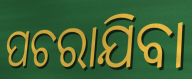
ପଚରାଯିବା